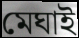
মেঘাই